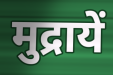
मुद्रायें